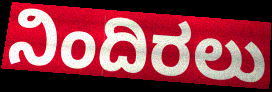
ನಿಂದಿರಲು